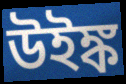
উইঙ্ক